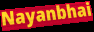
Nayanbhai